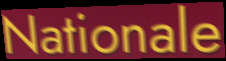
Nationale